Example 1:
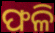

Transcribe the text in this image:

ଫଳି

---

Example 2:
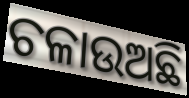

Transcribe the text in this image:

ଚଳାଉଅଛି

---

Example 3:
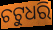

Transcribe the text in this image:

ଚଟୁଧରି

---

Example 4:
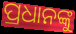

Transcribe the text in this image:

ପ୍ରଧାନଙ୍କୁ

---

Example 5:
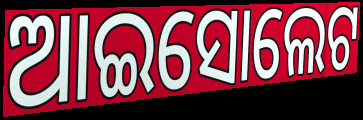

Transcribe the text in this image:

ଆଇସୋଲେଟ